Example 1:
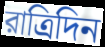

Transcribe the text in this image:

রাত্রিদিন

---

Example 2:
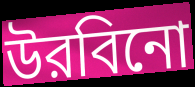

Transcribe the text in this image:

উরবিনো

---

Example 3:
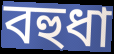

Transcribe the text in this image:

বহুধা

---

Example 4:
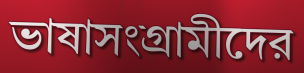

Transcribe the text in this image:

ভাষাসংগ্রামীদের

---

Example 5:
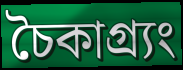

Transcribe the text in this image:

চৈকাগ্র্যং